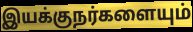
இயக்குநர்களையும்